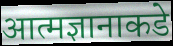
आत्मज्ञानाकडे